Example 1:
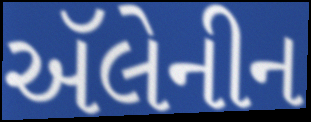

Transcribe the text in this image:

ઍલેનીન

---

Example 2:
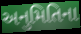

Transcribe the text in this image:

અનુમિતિના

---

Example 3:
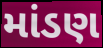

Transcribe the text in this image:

માંડણ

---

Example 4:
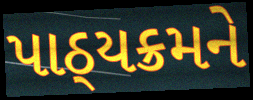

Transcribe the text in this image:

પાઠ્યક્રમને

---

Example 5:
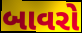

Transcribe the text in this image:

બાવરો